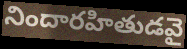
నిందారహితుడవై